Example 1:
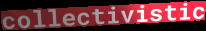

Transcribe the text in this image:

collectivistic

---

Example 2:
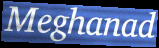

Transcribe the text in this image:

Meghanad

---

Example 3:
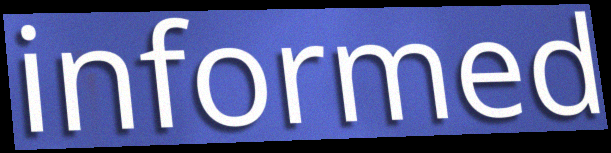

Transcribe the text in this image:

informed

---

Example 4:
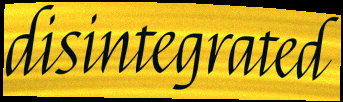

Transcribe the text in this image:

disintegrated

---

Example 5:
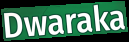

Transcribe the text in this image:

Dwaraka